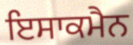
ਇਸਾਕਮੈਨ